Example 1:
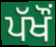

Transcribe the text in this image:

ਪੱਖੌਂ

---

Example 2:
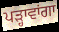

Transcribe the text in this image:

ਪੜ੍ਹਾਵਾਂਗਾ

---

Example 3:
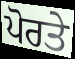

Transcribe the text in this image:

ਪੋਰਤੇ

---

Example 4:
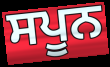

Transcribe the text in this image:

ਸਪੂਨ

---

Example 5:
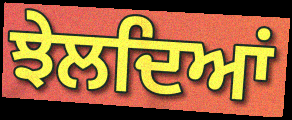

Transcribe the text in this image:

ਝੇਲਦਿਆਂ